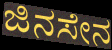
ಜಿನಸೇನ